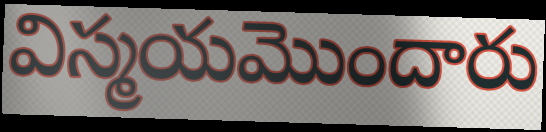
విస్మయమొందారు